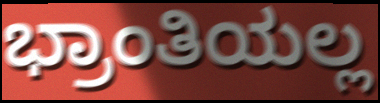
ಭ್ರಾಂತಿಯಲ್ಲ